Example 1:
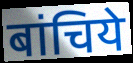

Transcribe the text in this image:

बांचिये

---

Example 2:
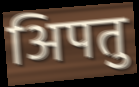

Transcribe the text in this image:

अिपतु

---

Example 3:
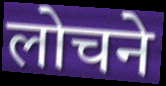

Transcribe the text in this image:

लोचने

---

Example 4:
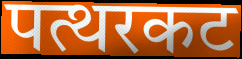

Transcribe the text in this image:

पत्थरकट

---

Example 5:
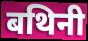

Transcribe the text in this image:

बथिनी